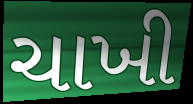
ચાખી